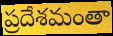
ప్రదేశమంతా